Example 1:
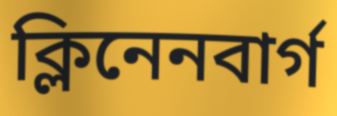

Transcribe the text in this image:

ক্লিনেনবার্গ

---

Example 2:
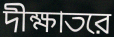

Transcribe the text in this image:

দীক্ষাতরে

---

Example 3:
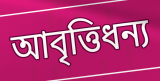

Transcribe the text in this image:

আবৃত্তিধন্য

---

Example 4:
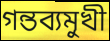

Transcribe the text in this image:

গন্তব্যমুখী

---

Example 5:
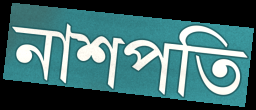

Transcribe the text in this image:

নাশপতি